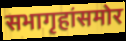
सभागृहांसमोर